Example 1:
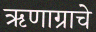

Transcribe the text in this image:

ऋणाग्राचे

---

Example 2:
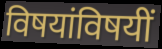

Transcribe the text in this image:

विषयांविषयीं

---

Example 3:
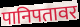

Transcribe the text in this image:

पानिपतावर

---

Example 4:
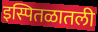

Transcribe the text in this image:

इस्पितळातली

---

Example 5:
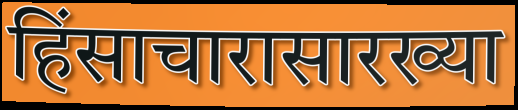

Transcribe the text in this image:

हिंसाचारासारख्या